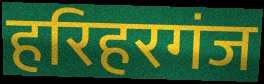
हरिहरगंज